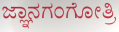
ಜ್ಞಾನಗಂಗೋತ್ರಿ